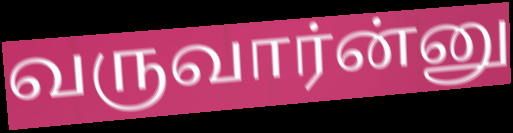
வருவார்ன்னு